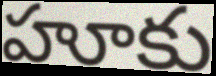
హూకు